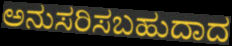
ಅನುಸರಿಸಬಹುದಾದ